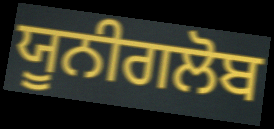
ਯੂਨੀਗਲੋਬ